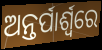
ଅନ୍ତର୍ପାର୍ଶ୍ୱରେ